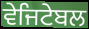
ਵੇਜਿਟੇਬਲ